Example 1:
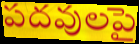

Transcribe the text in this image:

పదవులపై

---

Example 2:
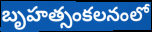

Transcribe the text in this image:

బృహత్సంకలనంలో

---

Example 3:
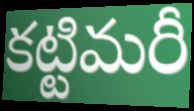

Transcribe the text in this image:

కట్టిమరీ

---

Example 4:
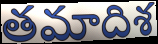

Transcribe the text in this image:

తమాదిశ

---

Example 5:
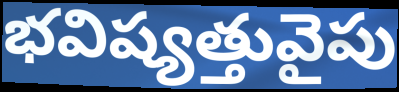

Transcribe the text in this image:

భవిష్యత్తువైపు